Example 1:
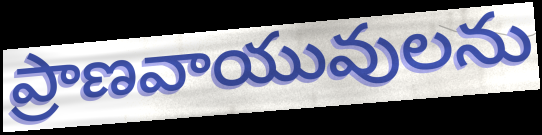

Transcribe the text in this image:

ప్రాణవాయువులను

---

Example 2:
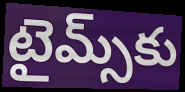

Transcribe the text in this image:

టైమ్స్‌కు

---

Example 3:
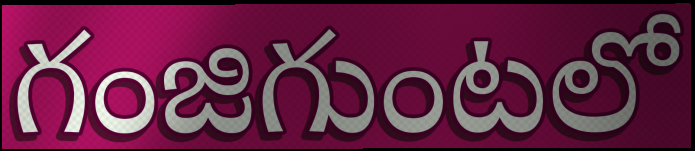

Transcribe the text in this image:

గంజిగుంటలో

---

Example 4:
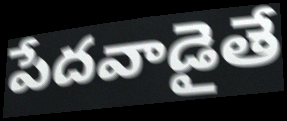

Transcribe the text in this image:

పేదవాడైతే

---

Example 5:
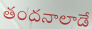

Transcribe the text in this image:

తందనాలాడే